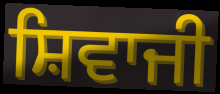
ਸ਼ਿਵਾਜੀ